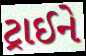
ટ્રાઈને